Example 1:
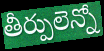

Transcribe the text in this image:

తీర్పులెన్నో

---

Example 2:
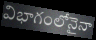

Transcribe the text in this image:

విభాగంలోనైనా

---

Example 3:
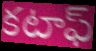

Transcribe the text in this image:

కటాఫ్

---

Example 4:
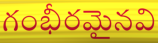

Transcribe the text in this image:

గంభీరమైనవి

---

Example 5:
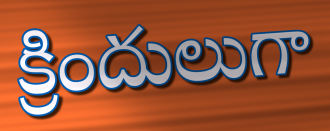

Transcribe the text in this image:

క్రిందులుగా